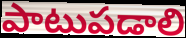
పాటుపడాలి